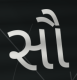
સૌ